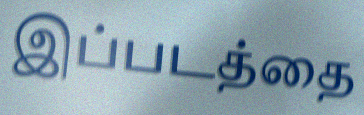
இப்படத்தை